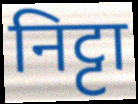
निट्टा